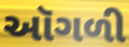
ઑગળી